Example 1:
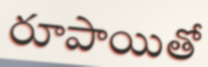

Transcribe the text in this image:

రూపాయితో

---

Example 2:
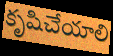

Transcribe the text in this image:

కృషిచేయాలి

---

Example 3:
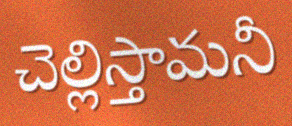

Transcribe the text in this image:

చెల్లిస్తామనీ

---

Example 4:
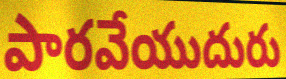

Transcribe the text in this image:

పారవేయుదురు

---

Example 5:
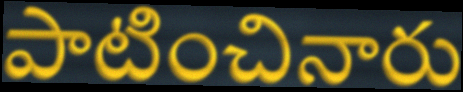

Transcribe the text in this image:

పాటించినారు